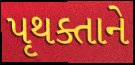
પૃથક્તાને